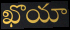
ఖొయా